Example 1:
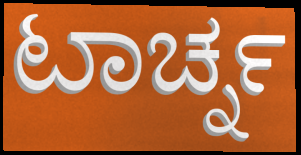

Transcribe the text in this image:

ಟಾರ್ಚ್ನ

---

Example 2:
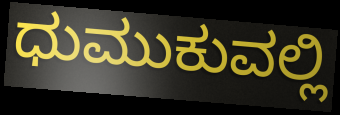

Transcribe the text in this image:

ಧುಮುಕುವಲ್ಲಿ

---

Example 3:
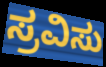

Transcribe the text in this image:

ಸ್ರವಿಸು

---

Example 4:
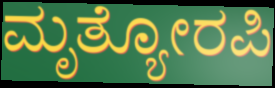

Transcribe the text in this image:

ಮೃತ್ಯೋರಪಿ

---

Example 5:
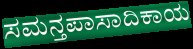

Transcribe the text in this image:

ಸಮನ್ತಪಾಸಾದಿಕಾಯ